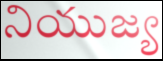
నియుజ్య